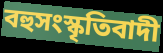
বহুসংস্কৃতিবাদী